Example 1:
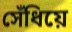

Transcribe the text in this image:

সেঁধিয়ে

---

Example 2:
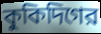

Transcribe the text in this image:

কুকিদিগের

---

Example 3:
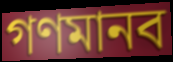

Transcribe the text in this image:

গণমানব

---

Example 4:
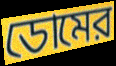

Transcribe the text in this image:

ডোমের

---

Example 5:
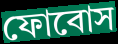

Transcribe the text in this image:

ফোবোস